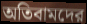
অতিবামদের